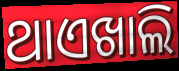
ଥାଏଖାଲି